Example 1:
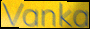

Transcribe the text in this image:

Vanka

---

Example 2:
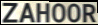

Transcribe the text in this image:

ZAHOOR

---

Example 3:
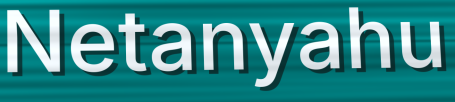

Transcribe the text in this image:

Netanyahu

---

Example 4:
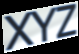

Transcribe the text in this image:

XYZ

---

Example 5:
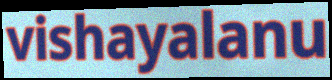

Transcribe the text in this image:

vishayalanu